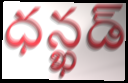
ధన్ఖడ్